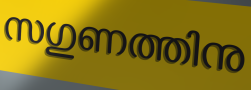
സഗുണത്തിനു